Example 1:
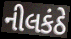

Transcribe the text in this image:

નીલકંઠે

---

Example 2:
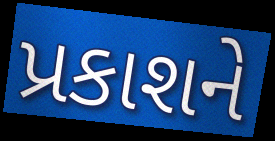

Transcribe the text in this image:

પ્રકાશને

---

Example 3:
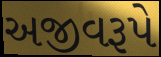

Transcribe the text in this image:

અજીવરૂપે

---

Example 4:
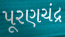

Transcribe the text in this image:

પૂરણચંદ્ર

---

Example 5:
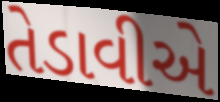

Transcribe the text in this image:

તેડાવીએ